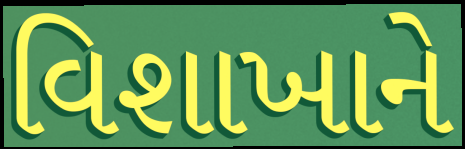
વિશાખાને